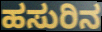
ಹಸುರಿನ